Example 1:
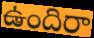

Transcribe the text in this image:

ఉందిరా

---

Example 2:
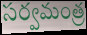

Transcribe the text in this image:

సర్వమంత్ర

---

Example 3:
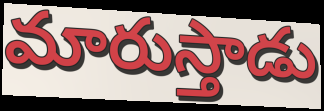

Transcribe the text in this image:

మారుస్తాడు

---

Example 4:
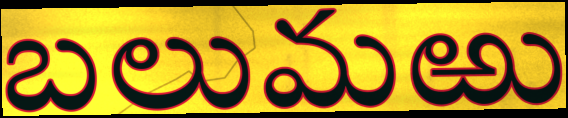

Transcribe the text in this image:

బలుమఱు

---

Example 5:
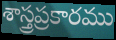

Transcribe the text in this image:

శాస్త్రప్రకారము